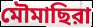
মৌমাছিরা